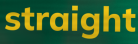
straight